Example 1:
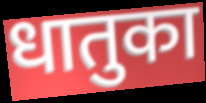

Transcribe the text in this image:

धातुका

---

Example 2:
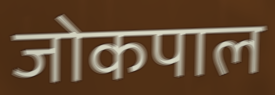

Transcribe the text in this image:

जोकपाल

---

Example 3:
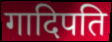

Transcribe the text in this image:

गादिपति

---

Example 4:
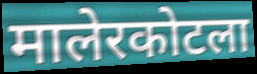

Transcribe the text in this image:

मालेरकोटला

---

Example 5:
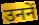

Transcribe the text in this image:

उननें